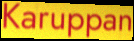
Karuppan